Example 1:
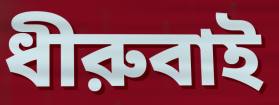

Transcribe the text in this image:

ধীরুবাই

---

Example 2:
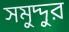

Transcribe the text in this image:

সমুদ্দুর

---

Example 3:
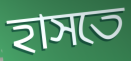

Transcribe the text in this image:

হাসতে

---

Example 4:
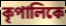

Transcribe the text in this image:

কৃপালিকে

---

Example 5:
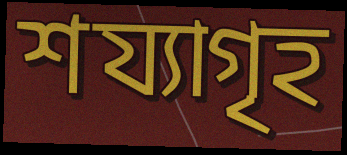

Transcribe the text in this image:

শয্যাগৃহ